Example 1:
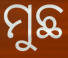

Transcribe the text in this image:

ମୁଛ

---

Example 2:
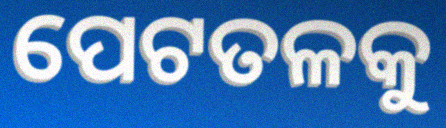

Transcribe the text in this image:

ପେଟତଳକୁ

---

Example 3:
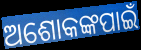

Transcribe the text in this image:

ଅଶୋକଙ୍କପାଇଁ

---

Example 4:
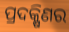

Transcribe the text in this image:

ପ୍ରଦକ୍ଷିଣର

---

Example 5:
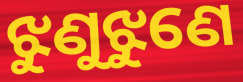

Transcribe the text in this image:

ଝୁଣୁଝୁଣେ